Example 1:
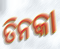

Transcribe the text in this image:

ତିନକା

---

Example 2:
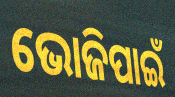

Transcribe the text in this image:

ଭୋଜିପାଇଁ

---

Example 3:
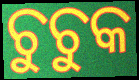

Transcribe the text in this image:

ଚୁଚୁକ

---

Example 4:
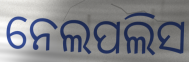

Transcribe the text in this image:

ନେଲପଲିସ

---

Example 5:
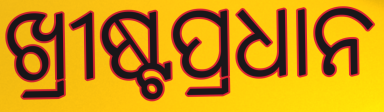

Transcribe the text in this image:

ଖ୍ରୀଷ୍ଟପ୍ରଧାନ